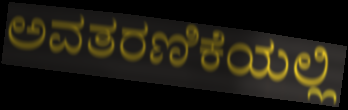
ಅವತರಣಿಕೆಯಲ್ಲಿ